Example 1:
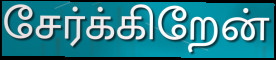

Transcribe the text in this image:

சேர்க்கிறேன்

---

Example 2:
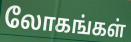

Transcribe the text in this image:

லோகங்கள்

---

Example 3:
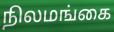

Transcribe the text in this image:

நிலமங்கை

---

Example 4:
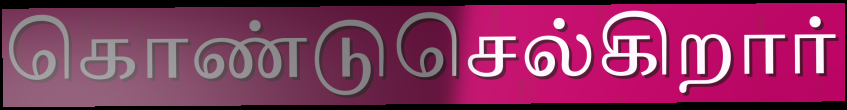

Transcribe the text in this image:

கொண்டுசெல்கிறார்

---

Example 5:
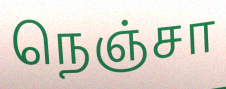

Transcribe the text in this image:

நெஞ்சா